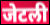
जेटली